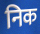
निक